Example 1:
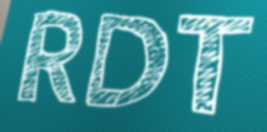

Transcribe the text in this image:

RDT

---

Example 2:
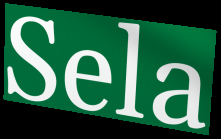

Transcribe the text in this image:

Sela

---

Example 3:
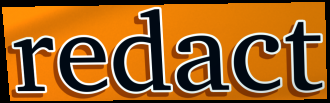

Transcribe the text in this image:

redact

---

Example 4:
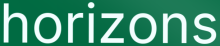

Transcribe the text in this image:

horizons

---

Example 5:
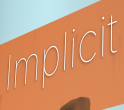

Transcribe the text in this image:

Implicit